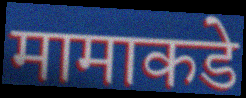
मामाकडे